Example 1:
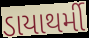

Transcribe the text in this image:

ડાયાથર્મી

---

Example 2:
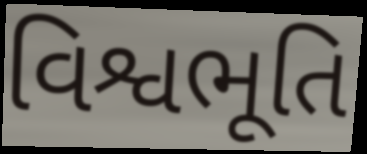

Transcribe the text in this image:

વિશ્વભૂતિ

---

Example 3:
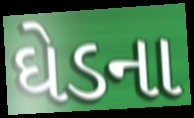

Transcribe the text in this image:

ઘેડના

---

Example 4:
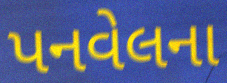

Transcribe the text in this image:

પનવેલના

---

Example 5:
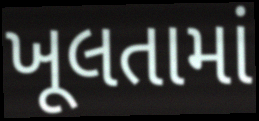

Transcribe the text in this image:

ખૂલતામાં